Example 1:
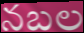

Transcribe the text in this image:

నబల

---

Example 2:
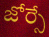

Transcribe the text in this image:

జోర్సే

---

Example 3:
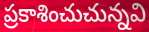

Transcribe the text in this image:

ప్రకాశించుచున్నవి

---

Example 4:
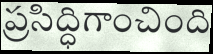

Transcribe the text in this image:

ప్రసిద్ధిగాంచింది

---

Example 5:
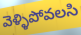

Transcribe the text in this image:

వెళ్ళిపోవలసి